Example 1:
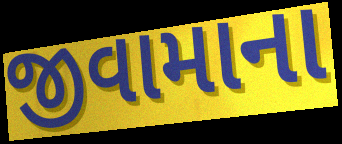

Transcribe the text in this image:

જીવામાના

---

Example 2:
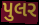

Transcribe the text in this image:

પુલર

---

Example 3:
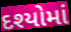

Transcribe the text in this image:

દશ્યોમાં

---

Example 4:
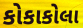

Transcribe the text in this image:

કોકાકોલા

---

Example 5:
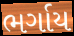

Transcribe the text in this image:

ભર્ગાય